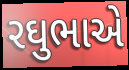
રઘુભાએ